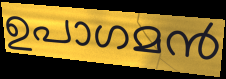
ഉപാഗമൻ